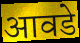
आवडे